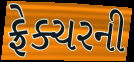
ફ્રેક્ચરની